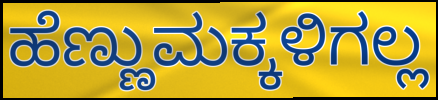
ಹೆಣ್ಣುಮಕ್ಕಳಿಗಲ್ಲ